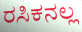
ರಸಿಕನಲ್ಲ